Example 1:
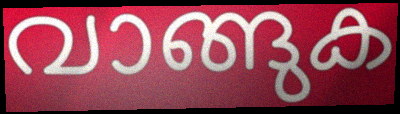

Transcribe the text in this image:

വാങ്ങുക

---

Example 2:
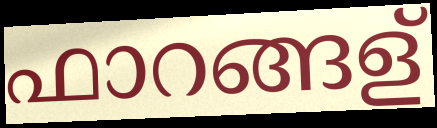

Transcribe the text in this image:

ഫാറങ്ങള്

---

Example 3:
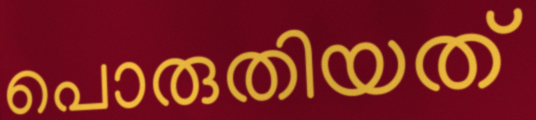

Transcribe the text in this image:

പൊരുതിയത്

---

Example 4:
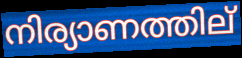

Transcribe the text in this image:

നിര്യാണത്തില്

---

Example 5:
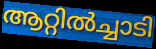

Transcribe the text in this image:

ആറ്റിൽച്ചാടി